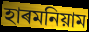
হাৰমনিয়াম